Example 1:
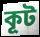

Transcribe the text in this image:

কূট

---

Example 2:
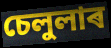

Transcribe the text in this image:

চেলুলাৰ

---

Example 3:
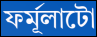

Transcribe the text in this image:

ফৰ্মূলাটো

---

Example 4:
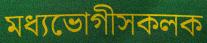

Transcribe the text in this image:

মধ্যভোগীসকলক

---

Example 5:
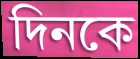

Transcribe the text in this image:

দিনকে